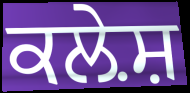
ਕਲ਼ੇਸ਼